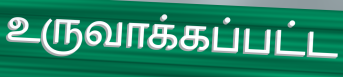
உருவாக்கப்பட்ட